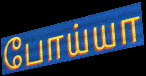
போய்யா